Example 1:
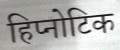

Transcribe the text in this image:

हिप्नोटिक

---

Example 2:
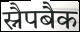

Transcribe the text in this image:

स्नैपबैक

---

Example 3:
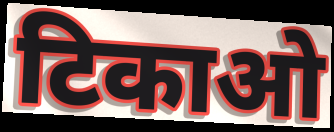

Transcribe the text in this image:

टिकाओ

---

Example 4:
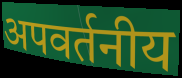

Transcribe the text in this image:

अपवर्तनीय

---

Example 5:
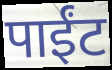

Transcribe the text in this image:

पाईंट